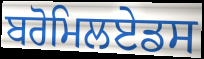
ਬਰੋਮਿਲਏਡਸ